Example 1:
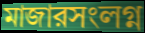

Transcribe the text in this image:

মাজারসংলগ্ন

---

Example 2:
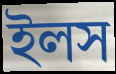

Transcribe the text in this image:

ইলস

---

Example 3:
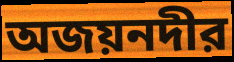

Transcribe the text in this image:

অজয়নদীর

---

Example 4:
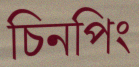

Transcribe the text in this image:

চিনপিং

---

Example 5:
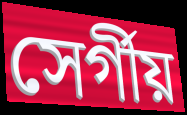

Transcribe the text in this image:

সের্গীয়